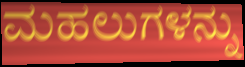
ಮಹಲುಗಳನ್ನು